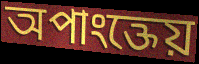
অপাংক্তেয়